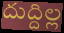
దుద్దిల్ల